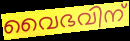
വൈഭവിന്